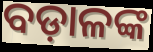
ବଡ଼ାଳଙ୍କ